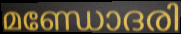
മണ്ഡോദരി